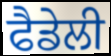
ਫੈਡੇਲੀ